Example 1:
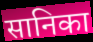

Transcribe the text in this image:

सानिका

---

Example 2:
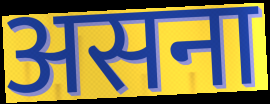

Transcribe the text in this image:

असना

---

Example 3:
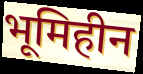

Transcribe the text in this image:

भूमिहीन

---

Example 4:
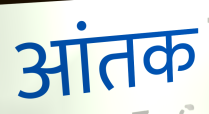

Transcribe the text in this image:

आंतक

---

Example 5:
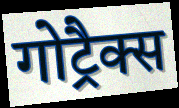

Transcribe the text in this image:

गोट्रैक्स